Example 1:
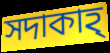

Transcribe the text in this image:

সদাকাহ্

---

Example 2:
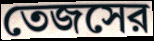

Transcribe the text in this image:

তেজসের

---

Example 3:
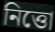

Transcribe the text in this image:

নিত্তো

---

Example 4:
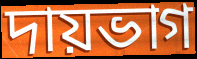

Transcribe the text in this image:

দায়ভাগ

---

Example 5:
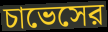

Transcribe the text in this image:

চাভেসের